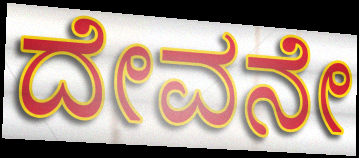
ದೇವನೇ